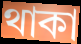
থাকা